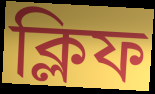
ক্লিফ